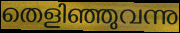
തെളിഞ്ഞുവന്നു